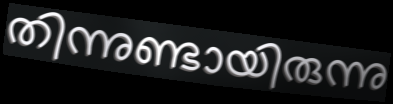
തിന്നുണ്ടായിരുന്നു